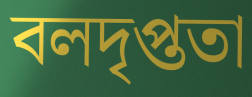
বলদৃপ্ততা